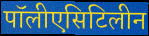
पॉलीएसिटिलीन